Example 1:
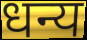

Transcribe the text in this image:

धन्य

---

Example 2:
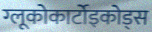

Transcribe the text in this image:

ग्लूकोकार्टोइकोड्स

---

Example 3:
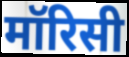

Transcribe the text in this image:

मॉरिसी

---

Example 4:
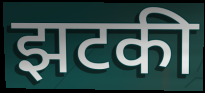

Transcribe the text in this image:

झटकी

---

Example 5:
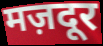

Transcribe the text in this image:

मज़दूर